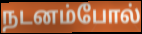
நடனம்போல்